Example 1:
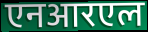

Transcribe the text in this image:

एनआरएल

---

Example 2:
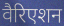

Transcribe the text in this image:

वैरिएशन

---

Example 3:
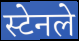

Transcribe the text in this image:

स्टेनले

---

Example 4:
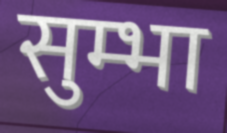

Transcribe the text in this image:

सुम्भा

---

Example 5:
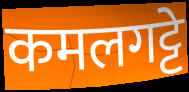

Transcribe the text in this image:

कमलगट्टे